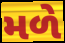
મળે